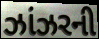
ઝાંઝરની